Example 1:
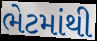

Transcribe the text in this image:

ભેટમાંથી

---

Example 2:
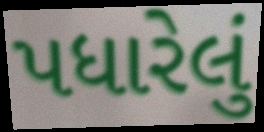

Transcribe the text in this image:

પધારેલું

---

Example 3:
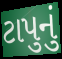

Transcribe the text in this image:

ટાપુનું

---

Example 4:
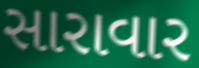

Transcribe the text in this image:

સારાવાર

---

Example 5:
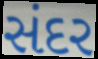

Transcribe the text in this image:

સંદર